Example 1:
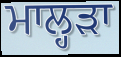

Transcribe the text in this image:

ਮਾਲ੍ਹੜਾ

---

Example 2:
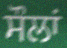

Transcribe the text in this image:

ਸੌਲਾਂ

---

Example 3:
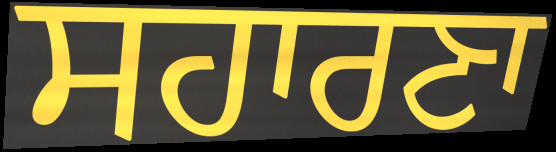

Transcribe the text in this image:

ਸਹਾਰਣਾ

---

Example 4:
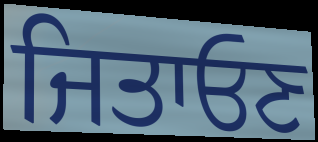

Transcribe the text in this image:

ਜਿਤਾਓਣ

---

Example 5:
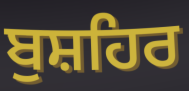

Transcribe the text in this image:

ਬੁਸ਼ਹਿਰ